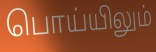
பொய்யிலும்